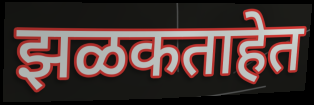
झळकताहेत